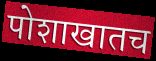
पोशाखातच